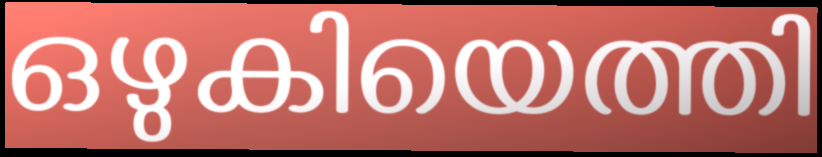
ഒഴുകിയെത്തി